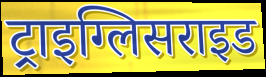
ट्राइग्लिसराइड